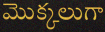
మొక్కలుగా